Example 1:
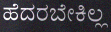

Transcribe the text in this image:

ಹೆದರಬೇಕಿಲ್ಲ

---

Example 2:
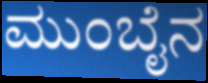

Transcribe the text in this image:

ಮುಂಬೈನ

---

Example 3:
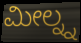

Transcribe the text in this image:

ಮೀಲ್ನ್ನ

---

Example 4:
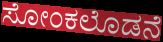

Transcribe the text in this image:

ಸೋಂಕಲೊಡನೆ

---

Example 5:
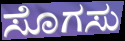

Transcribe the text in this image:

ಸೊಗಸು